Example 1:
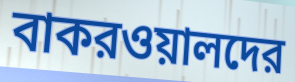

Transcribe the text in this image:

বাকরওয়ালদের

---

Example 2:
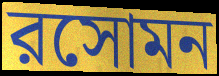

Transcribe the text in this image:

রসোমন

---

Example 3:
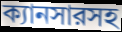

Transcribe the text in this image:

ক্যানসারসহ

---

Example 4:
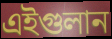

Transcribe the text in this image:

এইগুলান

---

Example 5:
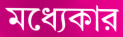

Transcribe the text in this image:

মধ্যেকার